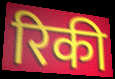
रिकी